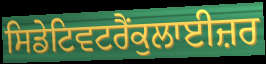
ਸਿਡੇਟਿਵਟਰੈਂਕੁਲਾਈਜ਼ਰ